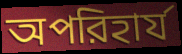
অপরিহার্য